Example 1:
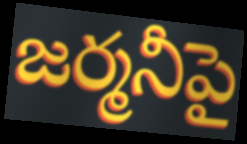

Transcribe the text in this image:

జర్మనీపై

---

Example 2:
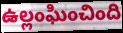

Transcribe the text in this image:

ఉల్లంఘించింది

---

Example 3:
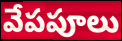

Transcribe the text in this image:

వేపపూలు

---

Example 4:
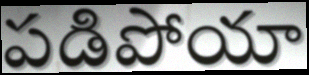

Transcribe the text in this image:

పడిపోయా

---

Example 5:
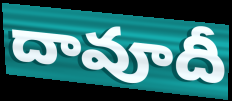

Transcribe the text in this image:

దావూదీ